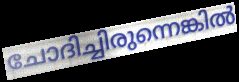
ചോദിച്ചിരുന്നെങ്കിൽ